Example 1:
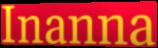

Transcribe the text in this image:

Inanna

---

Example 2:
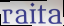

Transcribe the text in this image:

raita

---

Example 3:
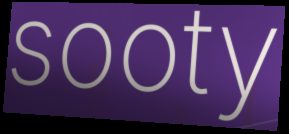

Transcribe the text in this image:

sooty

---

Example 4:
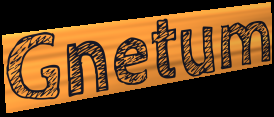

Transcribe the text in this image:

Gnetum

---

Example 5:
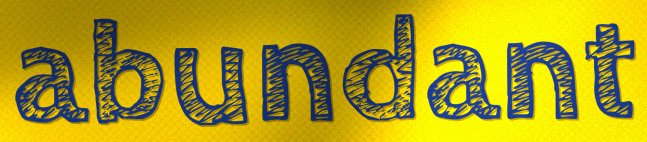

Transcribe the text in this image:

abundant